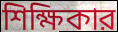
শিক্ষিকার